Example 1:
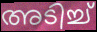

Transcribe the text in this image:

അടിച്ച്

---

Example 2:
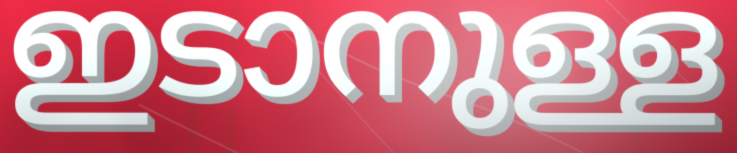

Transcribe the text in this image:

ഇടാനുള്ള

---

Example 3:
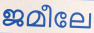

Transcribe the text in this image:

ജമീലേ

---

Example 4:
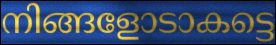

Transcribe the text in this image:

നിങ്ങളോടാകട്ടെ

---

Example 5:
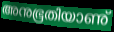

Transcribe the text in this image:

അനുഭൂതിയാണു്